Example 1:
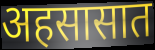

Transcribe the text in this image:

अहसासात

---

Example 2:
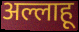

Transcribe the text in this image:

अल्लाहू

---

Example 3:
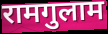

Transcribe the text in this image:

रामगुलाम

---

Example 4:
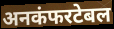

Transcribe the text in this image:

अनकंफरटेबल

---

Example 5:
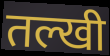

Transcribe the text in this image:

तल्‍खी